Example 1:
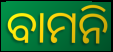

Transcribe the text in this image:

ବାମନି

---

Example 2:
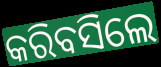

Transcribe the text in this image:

କରିବସିଲେ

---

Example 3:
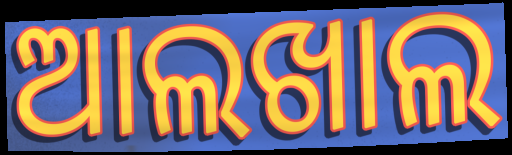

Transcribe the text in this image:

ଆଲଖାଲ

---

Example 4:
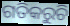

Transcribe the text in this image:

ଗତିକରୁଚି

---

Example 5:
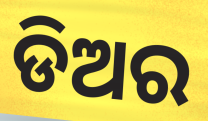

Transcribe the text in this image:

ଡିଅର